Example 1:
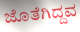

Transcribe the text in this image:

ಜೊತೆಗಿದ್ದವ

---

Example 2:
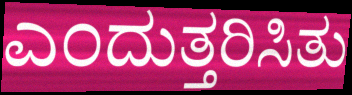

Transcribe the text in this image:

ಎಂದುತ್ತರಿಸಿತು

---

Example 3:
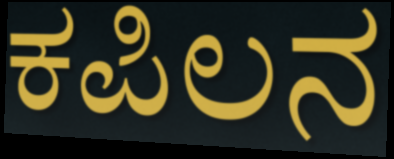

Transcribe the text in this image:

ಕಪಿಲನ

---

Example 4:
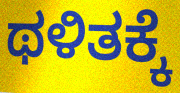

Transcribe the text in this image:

ಥಳಿತಕ್ಕೆ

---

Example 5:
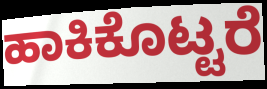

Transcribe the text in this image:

ಹಾಕಿಕೊಟ್ಟರೆ